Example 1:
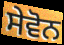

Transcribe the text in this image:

ਸੇਵੋਨ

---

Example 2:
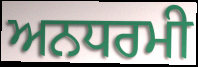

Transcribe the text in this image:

ਅਨਧਰਮੀ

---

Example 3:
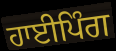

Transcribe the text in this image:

ਹਾਈਪਿੰਗ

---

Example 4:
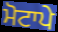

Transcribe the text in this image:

ਮੋਟਾਪੇ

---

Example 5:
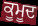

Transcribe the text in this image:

ਕੂਮੂਦ